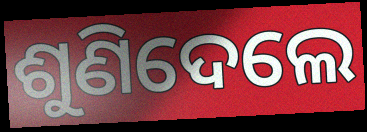
ଶୁଣିଦେଲେ